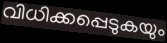
വിധിക്കപ്പെടുകയും